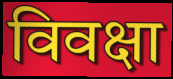
विवक्षा